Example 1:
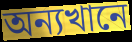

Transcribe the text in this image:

অন্যখানে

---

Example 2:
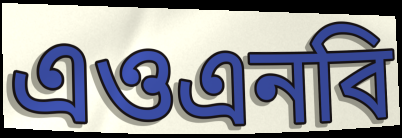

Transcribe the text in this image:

এওএনবি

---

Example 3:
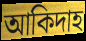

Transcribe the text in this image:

আকিদাহ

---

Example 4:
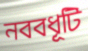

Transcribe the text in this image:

নববধূটি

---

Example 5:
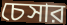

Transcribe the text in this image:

চেসার